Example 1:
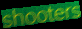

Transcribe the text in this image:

shooters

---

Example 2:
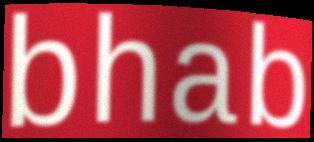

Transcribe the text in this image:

bhab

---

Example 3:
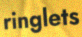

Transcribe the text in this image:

ringlets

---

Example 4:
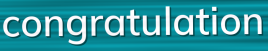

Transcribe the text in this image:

congratulation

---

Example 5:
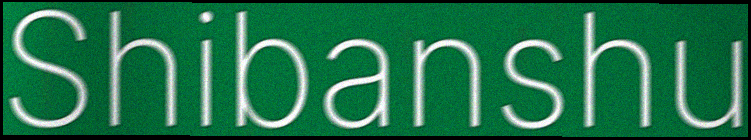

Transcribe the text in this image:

Shibanshu